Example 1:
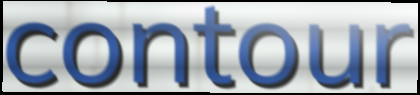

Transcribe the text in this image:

contour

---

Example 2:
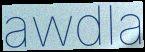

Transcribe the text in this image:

awdla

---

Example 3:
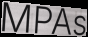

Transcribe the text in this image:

MPAs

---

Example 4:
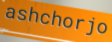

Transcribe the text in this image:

ashchorjo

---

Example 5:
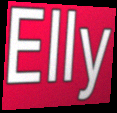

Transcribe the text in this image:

Elly